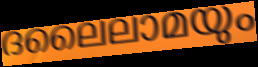
ദലൈലാമയും